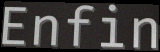
Enfin